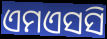
ଏମଏସସି